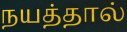
நயத்தால்